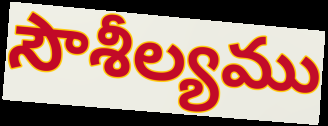
సౌశీల్యము